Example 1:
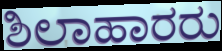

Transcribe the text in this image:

ಶಿಲಾಹಾರರು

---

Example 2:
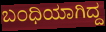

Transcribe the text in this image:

ಬಂಧಿಯಾಗಿದ್ದ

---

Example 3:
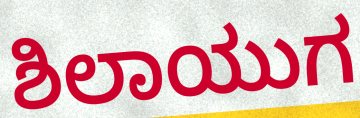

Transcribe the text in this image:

ಶಿಲಾಯುಗ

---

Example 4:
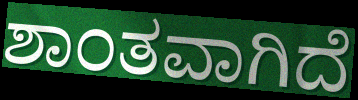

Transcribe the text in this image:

ಶಾಂತವಾಗಿದೆ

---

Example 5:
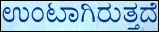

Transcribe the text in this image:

ಉಂಟಾಗಿರುತ್ತದೆ